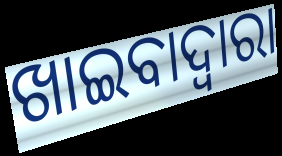
ଖାଇବାଦ୍ଵାରା